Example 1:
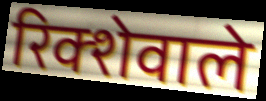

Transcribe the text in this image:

रिक्‍शेवाले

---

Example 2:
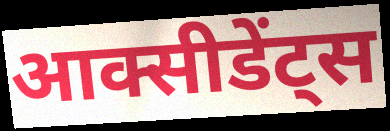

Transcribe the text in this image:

आक्सीडेंट्स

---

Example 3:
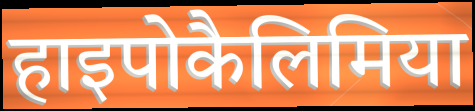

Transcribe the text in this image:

हाइपोकैलिमिया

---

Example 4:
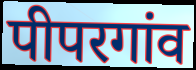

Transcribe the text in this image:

पीपरगांव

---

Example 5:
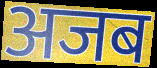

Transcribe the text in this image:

अजब